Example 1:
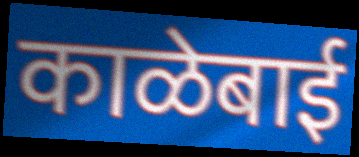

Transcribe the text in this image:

काळेबाई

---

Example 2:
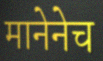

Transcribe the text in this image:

मानेनेच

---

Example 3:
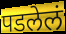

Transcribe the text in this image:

पडलेलं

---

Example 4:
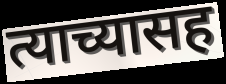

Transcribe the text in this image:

त्याच्यासह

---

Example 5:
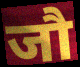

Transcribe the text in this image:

जौ